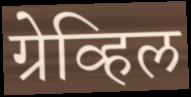
ग्रेव्हिल